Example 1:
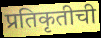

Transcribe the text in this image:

प्रतिकृतीची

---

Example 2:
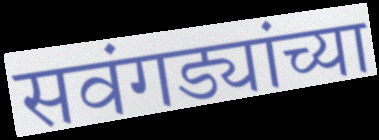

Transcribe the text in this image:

सवंगड्यांच्या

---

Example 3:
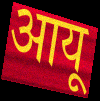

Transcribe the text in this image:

आयू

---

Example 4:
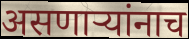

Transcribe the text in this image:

असणार्‍यांनाच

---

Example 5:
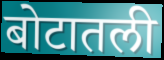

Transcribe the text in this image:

बोटातली